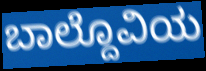
ಬಾಲ್ದೊವಿಯ